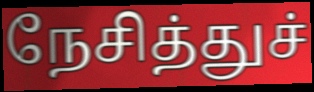
நேசித்துச்